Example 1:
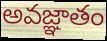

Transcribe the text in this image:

అవజ్ఞాతం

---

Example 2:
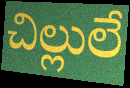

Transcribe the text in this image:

చిల్లులే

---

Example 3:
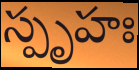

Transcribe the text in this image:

స్పృహః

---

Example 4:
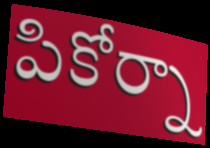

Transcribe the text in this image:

పికోర్నా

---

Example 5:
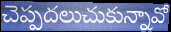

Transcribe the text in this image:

చెప్పదలుచుకున్నావో